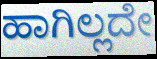
ಹಾಗಿಲ್ಲದೇ